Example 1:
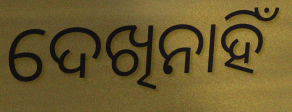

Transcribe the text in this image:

ଦେଖିନାହିଁ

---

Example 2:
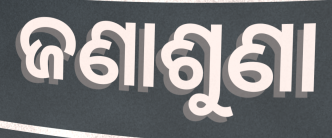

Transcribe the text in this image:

ଜଣାଶୁଣା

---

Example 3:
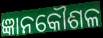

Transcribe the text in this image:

ଜ୍ଞାନକୌଶଳ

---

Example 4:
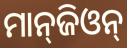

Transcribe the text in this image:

ମାନ୍‌ଜିଓନ୍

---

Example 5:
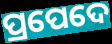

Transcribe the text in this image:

ପ୍ରପେଦେ